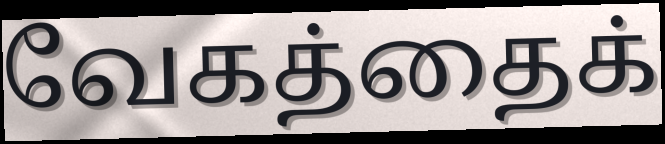
வேகத்தைக்